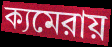
ক্যমেরায়